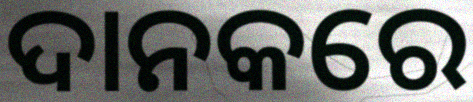
ଦାନକରେ